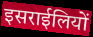
इसराईलियों